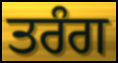
ਤਰੰਗ